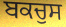
ਬਕਚੁਸ